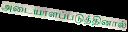
அடையாளப்படுத்தினால்